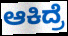
ಆಕಿದ್ರೆ